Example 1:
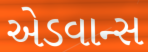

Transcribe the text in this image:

એડવાન્સ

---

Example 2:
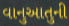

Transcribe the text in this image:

વાનુઆતુની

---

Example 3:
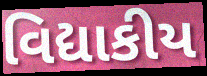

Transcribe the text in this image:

વિદ્યાકીય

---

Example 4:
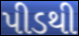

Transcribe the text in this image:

પીડથી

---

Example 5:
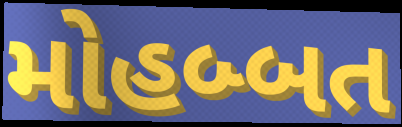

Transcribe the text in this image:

મોહબ્બત